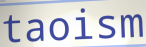
taoism